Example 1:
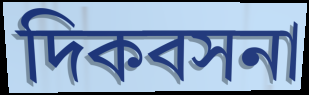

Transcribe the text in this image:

দিকবসনা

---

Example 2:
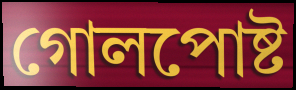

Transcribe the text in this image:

গোলপোষ্ট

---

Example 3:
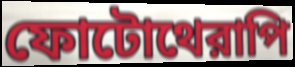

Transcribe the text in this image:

ফোটোথেরাপি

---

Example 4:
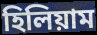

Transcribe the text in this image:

হিলিয়াম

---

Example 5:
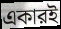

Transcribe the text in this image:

একারই